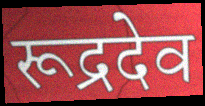
रूद्रदेव